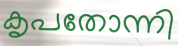
കൃപതോന്നി